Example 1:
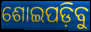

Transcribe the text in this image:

ଶୋଇପଡ଼ିବୁ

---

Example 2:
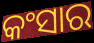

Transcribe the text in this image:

କଂସାର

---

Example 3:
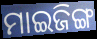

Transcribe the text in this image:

ମାଇଜିଙ୍ଗ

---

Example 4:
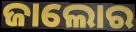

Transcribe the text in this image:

ଜାଲୋର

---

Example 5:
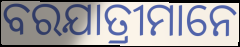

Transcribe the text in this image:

ବରଯାତ୍ରୀମାନେ